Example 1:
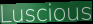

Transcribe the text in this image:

Luscious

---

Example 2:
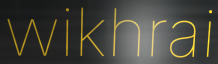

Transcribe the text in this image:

wikhrai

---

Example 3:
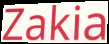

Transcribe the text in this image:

Zakia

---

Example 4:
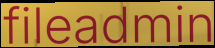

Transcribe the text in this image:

fileadmin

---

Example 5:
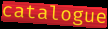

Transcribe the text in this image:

catalogue